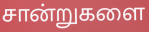
சான்றுகளை